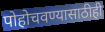
पोहोचवण्यासाठीही